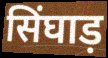
सिंघाड़